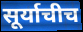
सूर्याचीच